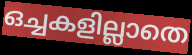
ഒച്ചകളില്ലാതെ